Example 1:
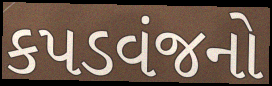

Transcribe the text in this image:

કપડવંજનો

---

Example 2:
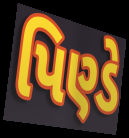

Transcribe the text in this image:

પિણ્ડે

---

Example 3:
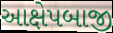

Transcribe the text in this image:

આક્ષેપબાજી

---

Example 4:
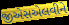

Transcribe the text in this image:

જીએસએલવીને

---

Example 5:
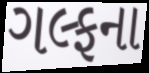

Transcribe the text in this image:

ગલ્ફના